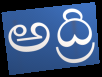
అద్రి